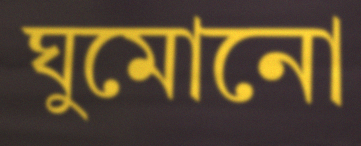
ঘুমোনো